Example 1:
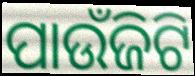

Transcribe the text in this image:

ପାଉଁଜିଟି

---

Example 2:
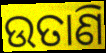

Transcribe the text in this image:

ଉତାଣି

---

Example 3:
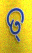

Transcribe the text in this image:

ତ୍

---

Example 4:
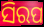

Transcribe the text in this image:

ସିରପ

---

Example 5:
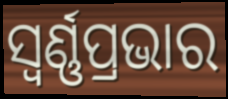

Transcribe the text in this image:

ସ୍ୱର୍ଣ୍ଣପ୍ରଭାର